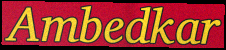
Ambedkar